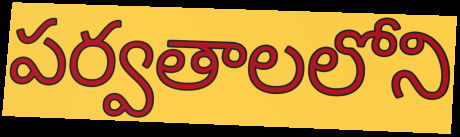
పర్వతాలలోని